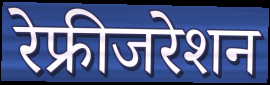
रेफ्रीजरेशन